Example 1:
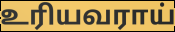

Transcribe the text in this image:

உரியவராய்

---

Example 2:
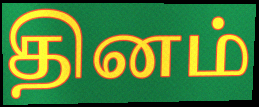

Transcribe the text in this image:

தினம்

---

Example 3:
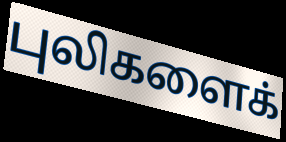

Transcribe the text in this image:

புலிகளைக்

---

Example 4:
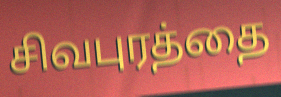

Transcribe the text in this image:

சிவபுரத்தை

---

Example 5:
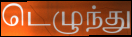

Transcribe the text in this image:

டெழுந்து